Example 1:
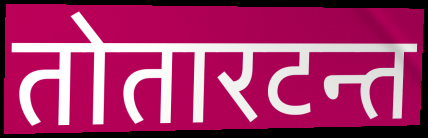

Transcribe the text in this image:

तोतारटन्त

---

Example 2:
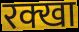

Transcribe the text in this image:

रक्‍खा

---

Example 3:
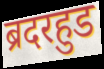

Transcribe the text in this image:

ब्रदरहुड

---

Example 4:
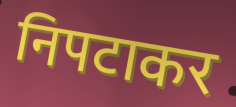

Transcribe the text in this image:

निपटाकर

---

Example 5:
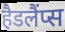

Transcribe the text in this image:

हैडलैंप्स